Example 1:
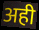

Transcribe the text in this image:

अही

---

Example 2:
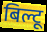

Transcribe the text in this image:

बिल्टू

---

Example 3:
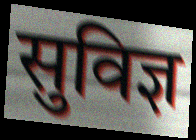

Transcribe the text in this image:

सुविज्ञ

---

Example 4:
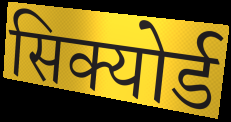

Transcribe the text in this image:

सिक्योर्ड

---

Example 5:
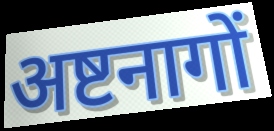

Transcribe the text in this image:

अष्टनागों